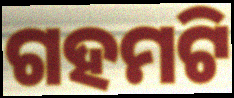
ଗହମଟି